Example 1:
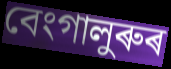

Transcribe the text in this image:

বেংগালুৰুৰ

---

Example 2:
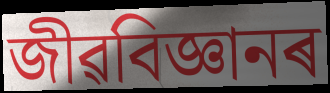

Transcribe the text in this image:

জীৱবিজ্ঞানৰ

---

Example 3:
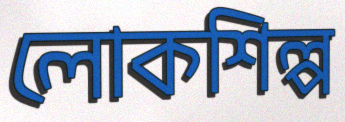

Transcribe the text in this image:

লোকশিল্প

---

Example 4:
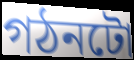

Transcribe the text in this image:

গঠনটো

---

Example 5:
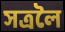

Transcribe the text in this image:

সত্ৰলৈ